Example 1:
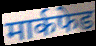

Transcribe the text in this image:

मार्कफेड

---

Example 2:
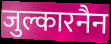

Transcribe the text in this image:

जुल्कारनैन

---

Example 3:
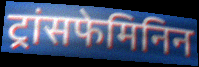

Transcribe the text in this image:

ट्रांसफेमिनिन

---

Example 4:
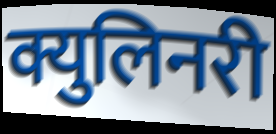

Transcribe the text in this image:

क्युलिनरी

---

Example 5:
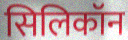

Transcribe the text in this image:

सिलिकॉन